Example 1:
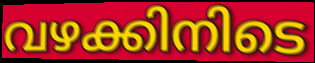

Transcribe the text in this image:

വഴക്കിനിടെ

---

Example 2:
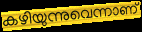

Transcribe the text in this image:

കഴിയുന്നുവെന്നാണ്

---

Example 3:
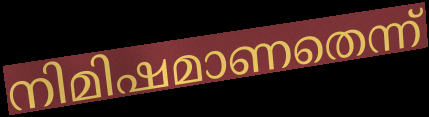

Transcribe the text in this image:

നിമിഷമാണതെന്ന്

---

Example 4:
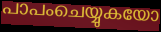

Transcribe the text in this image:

പാപംചെയ്യുകയോ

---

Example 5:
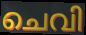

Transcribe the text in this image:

ചെവി